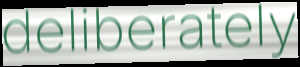
deliberately